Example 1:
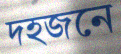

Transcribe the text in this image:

দহজনে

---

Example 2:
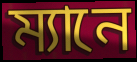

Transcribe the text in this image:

ম্যানে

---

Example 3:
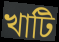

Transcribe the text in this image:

খাটি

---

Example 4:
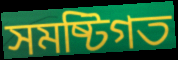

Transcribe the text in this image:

সমষ্টিগত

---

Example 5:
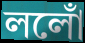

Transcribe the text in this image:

ললোঁ